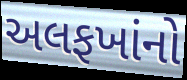
અલફખાંનો